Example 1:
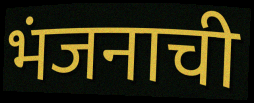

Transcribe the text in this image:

भंजनाची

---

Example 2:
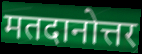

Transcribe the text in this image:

मतदानोत्तर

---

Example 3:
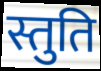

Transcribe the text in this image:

स्तुति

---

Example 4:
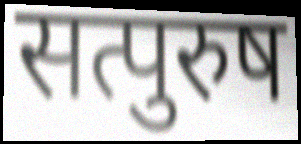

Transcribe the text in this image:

सत्पुरुष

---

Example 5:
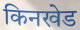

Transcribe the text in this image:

किनखेड